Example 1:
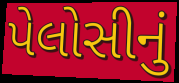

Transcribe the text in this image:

પેલોસીનું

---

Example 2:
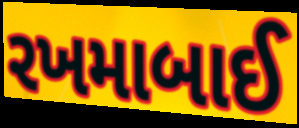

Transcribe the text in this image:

રખમાબાઈ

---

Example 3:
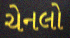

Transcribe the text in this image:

ચેનલો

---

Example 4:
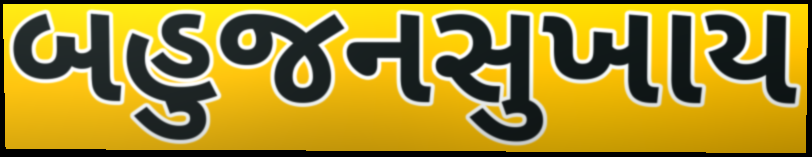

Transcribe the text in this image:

બહુજનસુખાય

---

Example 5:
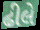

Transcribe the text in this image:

ઢીલે